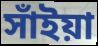
সাঁইয়া